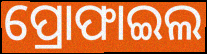
ପ୍ରୋଫାଇଲ